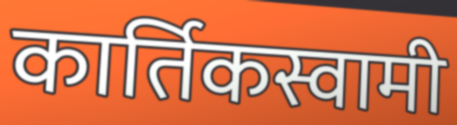
कार्तिकस्वामी